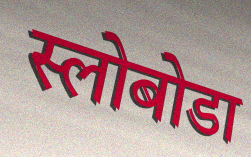
स्लोबोडा